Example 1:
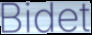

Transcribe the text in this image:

Bidet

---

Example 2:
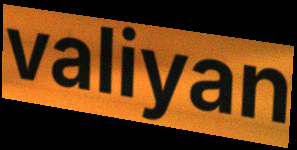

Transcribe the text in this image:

valiyan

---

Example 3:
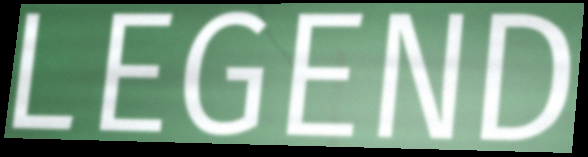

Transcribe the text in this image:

LEGEND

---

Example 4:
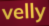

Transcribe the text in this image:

velly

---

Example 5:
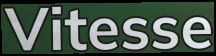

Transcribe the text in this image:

Vitesse